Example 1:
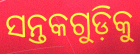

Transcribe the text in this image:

ସନ୍ତକଗୁଡ଼ିକୁ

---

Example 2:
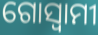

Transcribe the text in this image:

ଗୋସ୍ଵାମୀ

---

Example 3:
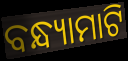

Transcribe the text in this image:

ବନ୍ଧ୍ୟାମାଟି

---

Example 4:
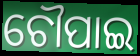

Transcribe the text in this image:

ଚୌପାଇ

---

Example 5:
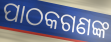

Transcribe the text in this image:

ପାଠକଗଣଙ୍କ